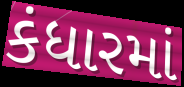
કંધારમાં